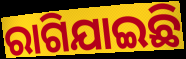
ରାଗିଯାଇଛି